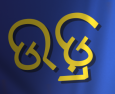
ଉଡ଼୍ର